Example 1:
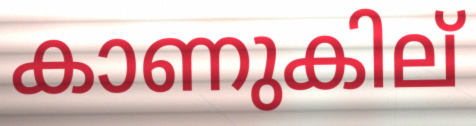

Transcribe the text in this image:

കാണുകില്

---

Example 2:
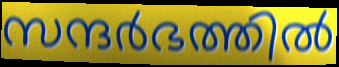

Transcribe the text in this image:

സന്ദർഭത്തിൽ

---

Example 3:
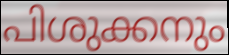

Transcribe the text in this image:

പിശുക്കനും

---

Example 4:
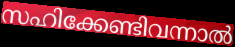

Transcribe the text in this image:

സഹിക്കേണ്ടിവന്നാൽ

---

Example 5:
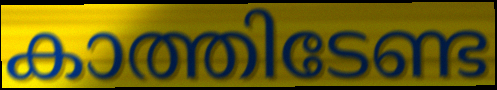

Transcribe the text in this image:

കാത്തിടേണ്ട